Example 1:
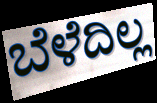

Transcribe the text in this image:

ಬೆಳೆದಿಲ್ಲ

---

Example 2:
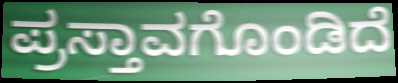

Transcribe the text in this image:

ಪ್ರಸ್ತಾವಗೊಂಡಿದೆ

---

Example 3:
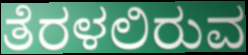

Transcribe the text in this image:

ತೆರಳಲಿರುವ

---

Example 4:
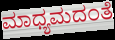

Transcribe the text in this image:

ಮಾಧ್ಯಮದಂತೆ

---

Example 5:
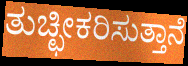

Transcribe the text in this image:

ತುಚ್ಛೀಕರಿಸುತ್ತಾನೆ